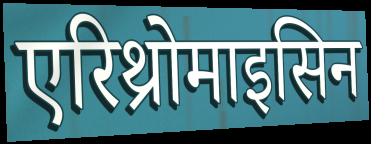
एरिथ्रोमाइसिन